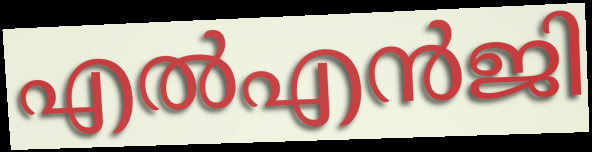
എൽഎൻജി